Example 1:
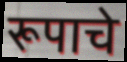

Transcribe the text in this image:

रूपाचे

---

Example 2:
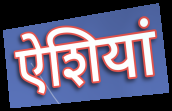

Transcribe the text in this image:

ऐशियां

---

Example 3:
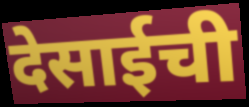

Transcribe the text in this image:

देसाईची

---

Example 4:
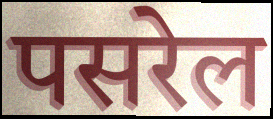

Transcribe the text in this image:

पसरेल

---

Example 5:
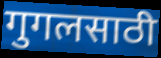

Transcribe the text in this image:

गुगलसाठी